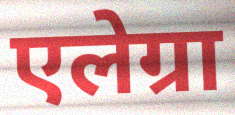
एलेग्रा